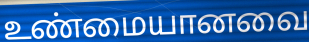
உண்மையானவை